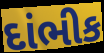
દાંભીક